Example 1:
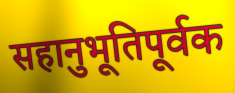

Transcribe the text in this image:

सहानुभूतिपूर्वक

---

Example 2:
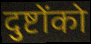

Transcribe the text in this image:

दुष्टोंको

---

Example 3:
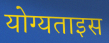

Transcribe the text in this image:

योग्यताइस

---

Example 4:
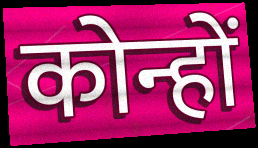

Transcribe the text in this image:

कोन्हों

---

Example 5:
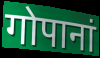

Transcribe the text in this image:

गोपानां